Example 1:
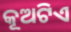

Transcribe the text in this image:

କୂଅଟିଏ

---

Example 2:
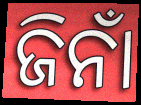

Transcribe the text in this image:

ଜିନାଁ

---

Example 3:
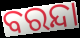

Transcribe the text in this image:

ବରନ୍ଦା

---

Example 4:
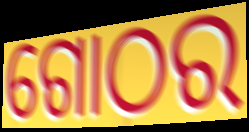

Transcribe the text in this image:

ଗୋଠର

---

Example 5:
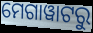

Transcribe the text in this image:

ମେଗାୱାଟରୁ